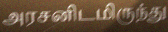
அரசனிடமிருந்து